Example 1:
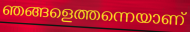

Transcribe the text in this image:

ഞങ്ങളെത്തന്നെയാണ്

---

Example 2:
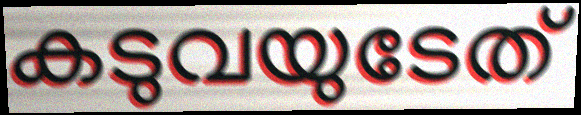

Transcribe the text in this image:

കടുവയുടേത്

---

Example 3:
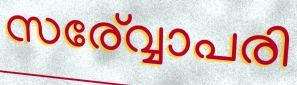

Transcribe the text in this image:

സര്വ്വോപരി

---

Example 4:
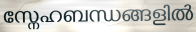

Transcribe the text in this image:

സ്നേഹബന്ധങ്ങളിൽ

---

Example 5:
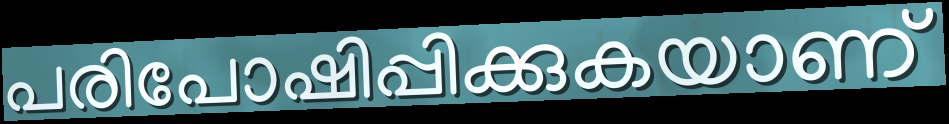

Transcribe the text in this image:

പരിപോഷിപ്പിക്കുകയാണ്